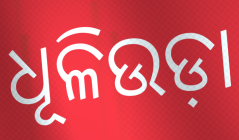
ଧୂଳିଉଡ଼ା